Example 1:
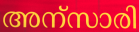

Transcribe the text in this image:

അന്സാരി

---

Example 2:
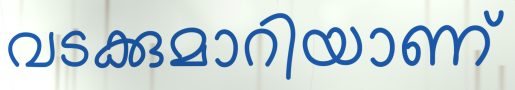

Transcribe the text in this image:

വടക്കുമാറിയാണ്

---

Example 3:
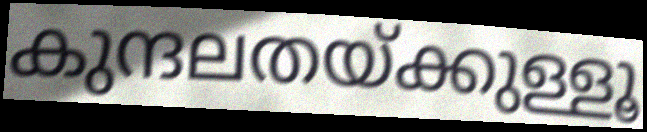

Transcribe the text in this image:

കുന്ദലതയ്ക്കുള്ളൂ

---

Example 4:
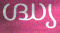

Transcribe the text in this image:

ഗ്ദ്ധ്യ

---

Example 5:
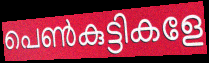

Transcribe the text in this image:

പെൺകുട്ടികളേ